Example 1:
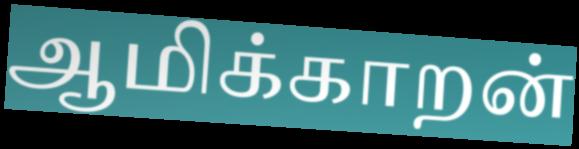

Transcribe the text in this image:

ஆமிக்காறன்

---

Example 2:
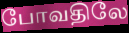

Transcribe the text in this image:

போவதிலே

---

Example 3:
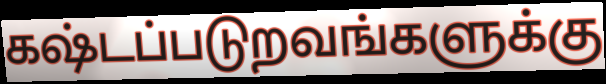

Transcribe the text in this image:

கஷ்டப்படுறவங்களுக்கு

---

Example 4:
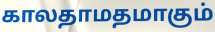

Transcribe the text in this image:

காலதாமதமாகும்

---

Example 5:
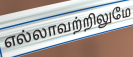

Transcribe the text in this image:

எல்லாவற்றிலுமே